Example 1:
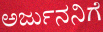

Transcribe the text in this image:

ಅರ್ಜುನನಿಗೆ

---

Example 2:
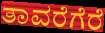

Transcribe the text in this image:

ತಾವರೆಗೆರೆ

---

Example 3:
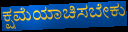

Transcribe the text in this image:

ಕ್ಷಮೆಯಾಚಿಸಬೇಕು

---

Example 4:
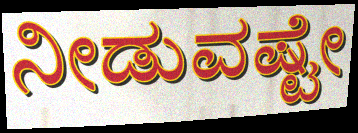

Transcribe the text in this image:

ನೀಡುವಷ್ಟೇ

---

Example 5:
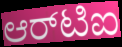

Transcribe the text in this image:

ಆರ್‌ಟಿಐ